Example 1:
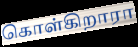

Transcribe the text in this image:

கொள்கிறாரா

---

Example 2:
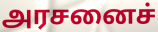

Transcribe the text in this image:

அரசனைச்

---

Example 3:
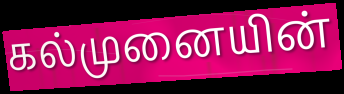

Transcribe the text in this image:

கல்முனையின்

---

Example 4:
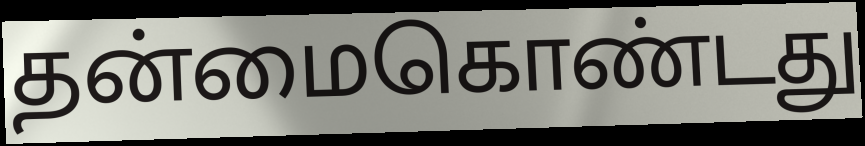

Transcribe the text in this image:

தன்மைகொண்டது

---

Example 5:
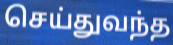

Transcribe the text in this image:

செய்துவந்த